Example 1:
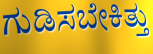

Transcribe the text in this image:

ಗುಡಿಸಬೇಕಿತ್ತು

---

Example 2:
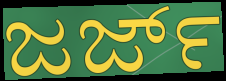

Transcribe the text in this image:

ಜರ್ಜ್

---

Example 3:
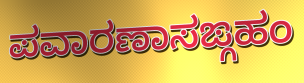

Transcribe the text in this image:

ಪವಾರಣಾಸಙ್ಗಹಂ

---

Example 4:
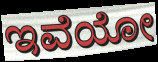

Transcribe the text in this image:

ಇವೆಯೋ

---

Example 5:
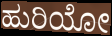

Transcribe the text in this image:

ಹುರಿಯೋ